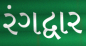
રંગદ્વાર